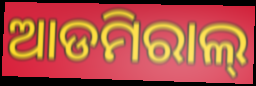
ଆଡମିରାଲ୍